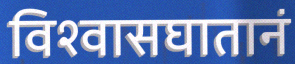
विश्वासघातानं